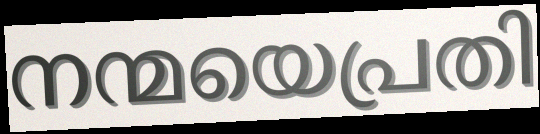
നന്മയെപ്രതി